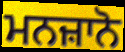
ਮਨਜ਼ਾਨੋ